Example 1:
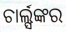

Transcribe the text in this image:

ଚାର୍ଲ୍ସଙ୍କର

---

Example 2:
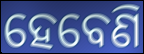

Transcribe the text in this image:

ହେବେଣି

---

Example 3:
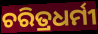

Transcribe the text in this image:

ଚରିତ୍ରଧର୍ମୀ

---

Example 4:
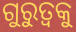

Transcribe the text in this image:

ଗୁରୁତ୍ୱକୁ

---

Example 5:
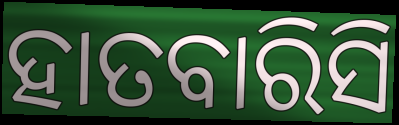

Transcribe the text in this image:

ହାତବାରିସି